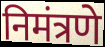
निमंत्रणे